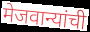
मेजवान्यांची